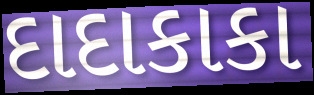
દાદાકાકા